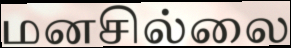
மனசில்லை